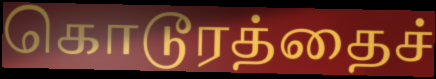
கொடூரத்தைச்